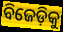
ବିଜେଡ଼ିକୁ